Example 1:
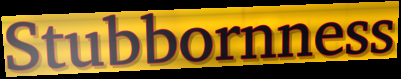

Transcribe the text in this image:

Stubbornness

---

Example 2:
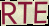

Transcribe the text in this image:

RTE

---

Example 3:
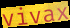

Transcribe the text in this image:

vivax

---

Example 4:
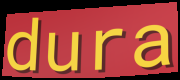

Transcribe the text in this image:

dura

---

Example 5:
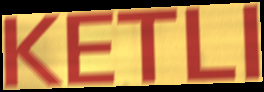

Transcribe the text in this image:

KETLI